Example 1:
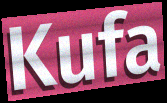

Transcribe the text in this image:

Kufa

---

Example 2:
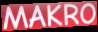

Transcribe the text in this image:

MAKRO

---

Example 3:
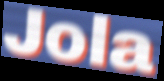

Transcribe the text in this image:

Jola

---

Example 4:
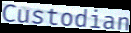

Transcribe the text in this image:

Custodian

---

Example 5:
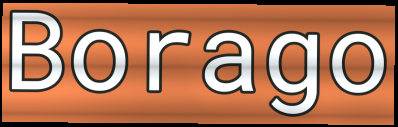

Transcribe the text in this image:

Borago